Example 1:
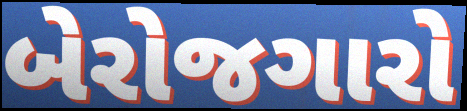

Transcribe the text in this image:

બેરોજગારો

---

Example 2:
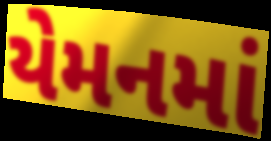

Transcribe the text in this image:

યેમનમાં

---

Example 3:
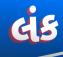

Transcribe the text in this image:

લંક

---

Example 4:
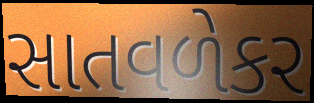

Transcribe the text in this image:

સાતવળેકર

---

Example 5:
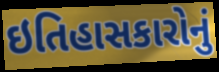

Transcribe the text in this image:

ઇતિહાસકારોનું